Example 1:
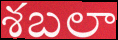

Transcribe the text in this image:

శబలా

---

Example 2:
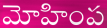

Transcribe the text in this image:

మోహింప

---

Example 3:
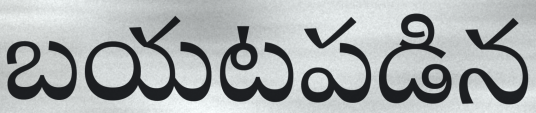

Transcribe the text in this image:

బయటపడిన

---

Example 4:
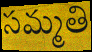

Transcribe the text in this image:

సమ్మతి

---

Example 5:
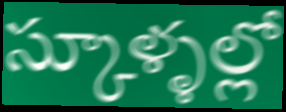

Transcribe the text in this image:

స్కూళ్ళల్లో